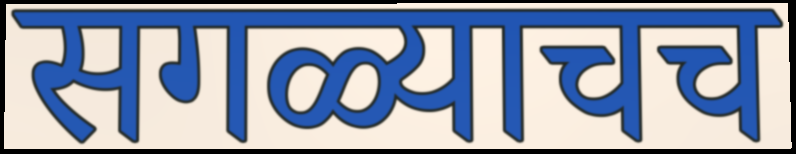
सगळ्याचच